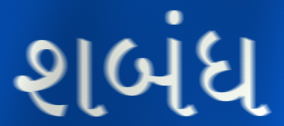
શબંધ